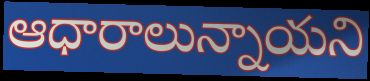
ఆధారాలున్నాయని